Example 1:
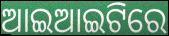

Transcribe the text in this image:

ଆଇଆଇଟିରେ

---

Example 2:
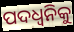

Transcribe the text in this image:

ପଦଧ୍ୱନିକୁ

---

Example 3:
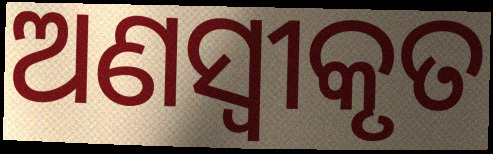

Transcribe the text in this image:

ଅଣସ୍ୱୀକୃତ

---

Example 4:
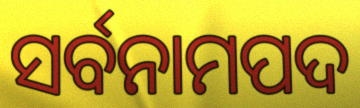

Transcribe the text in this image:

ସର୍ବନାମପଦ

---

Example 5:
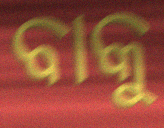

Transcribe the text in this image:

ବାକୁ